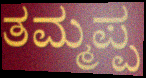
ತಮ್ಮಪ್ಪ